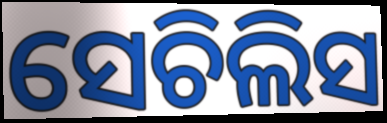
ସେଚିଲିସ